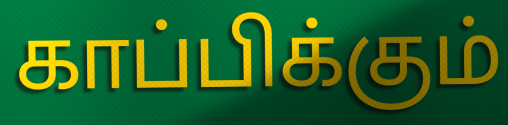
காப்பிக்கும்